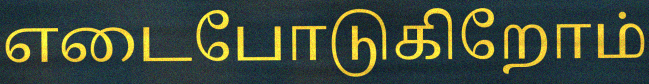
எடைபோடுகிறோம்